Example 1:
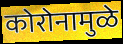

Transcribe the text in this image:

कोरोनामुळे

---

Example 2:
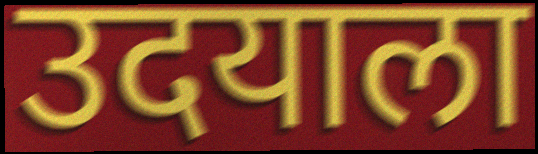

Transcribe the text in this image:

उदयाला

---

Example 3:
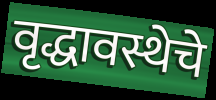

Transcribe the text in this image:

वृद्धावस्थेचे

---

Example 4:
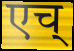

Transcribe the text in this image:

एच्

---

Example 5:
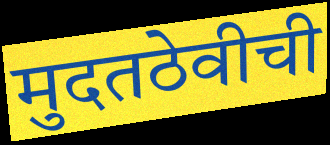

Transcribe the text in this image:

मुदतठेवीची